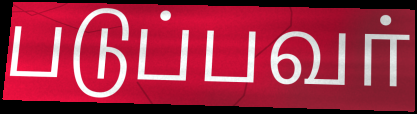
படுப்பவர்